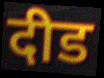
दीड